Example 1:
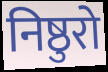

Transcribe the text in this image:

निष्ठुरो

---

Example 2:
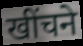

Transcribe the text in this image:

खींचने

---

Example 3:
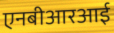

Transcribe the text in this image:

एनबीआरआई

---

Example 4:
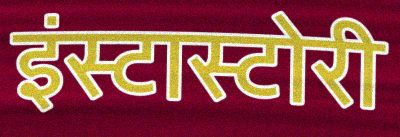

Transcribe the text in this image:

इंस्टास्टोरी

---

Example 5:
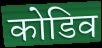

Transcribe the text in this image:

कोडिव